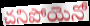
చనిపోయెనో